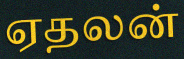
ஏதலன்